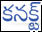
కనక్ట్